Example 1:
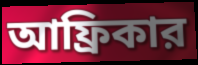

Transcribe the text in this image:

আফ্রিকার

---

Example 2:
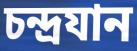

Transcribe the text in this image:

চন্দ্রযান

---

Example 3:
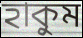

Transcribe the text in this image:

হাকুম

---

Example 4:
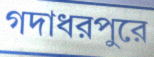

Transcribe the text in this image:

গদাধরপুরে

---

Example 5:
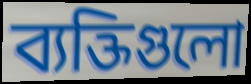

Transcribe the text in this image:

ব্যক্তিগুলো